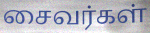
சைவர்கள்